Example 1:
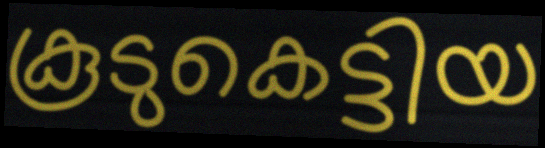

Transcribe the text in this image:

കൂടുകെട്ടിയ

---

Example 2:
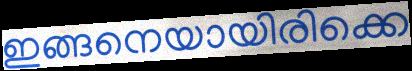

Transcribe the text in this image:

ഇങ്ങനെയായിരിക്കെ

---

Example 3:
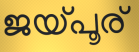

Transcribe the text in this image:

ജയ്പൂര്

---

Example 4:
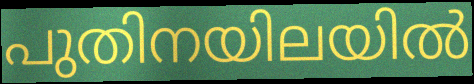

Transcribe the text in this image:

പുതിനയിലയിൽ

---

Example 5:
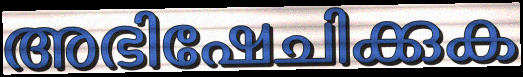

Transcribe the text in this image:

അഭിഷേചിക്കുക